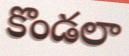
కొండలా